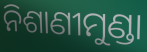
ନିଶାଣୀମୁଣ୍ଡା